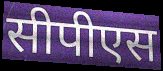
सीपीएस